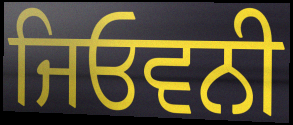
ਜਿਓਵਨੀ